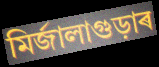
মিৰ্জালাগুড়াৰ